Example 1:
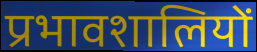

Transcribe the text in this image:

प्रभावशालियों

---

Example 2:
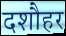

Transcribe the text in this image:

दशौहर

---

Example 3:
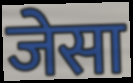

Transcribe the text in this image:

जेसा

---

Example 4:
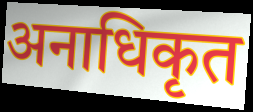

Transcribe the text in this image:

अनाधिकृत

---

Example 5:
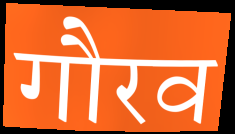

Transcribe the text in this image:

गौरव